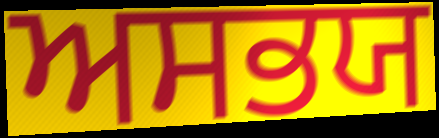
ਅਸਭਯ